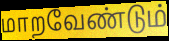
மாறவேண்டும்